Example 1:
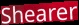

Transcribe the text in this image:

Shearer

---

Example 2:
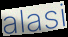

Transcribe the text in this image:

alasi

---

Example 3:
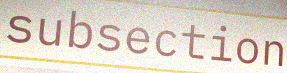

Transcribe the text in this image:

subsection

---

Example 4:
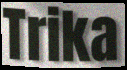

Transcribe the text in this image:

Trika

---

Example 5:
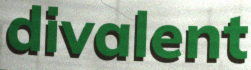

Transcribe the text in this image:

divalent